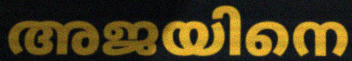
അജയിനെ